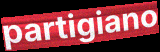
partigiano